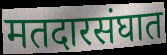
मतदारसंघात